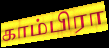
காம்பிரா